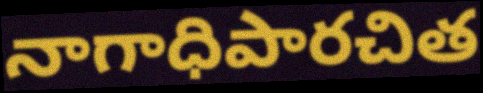
నాగాధిపారచిత